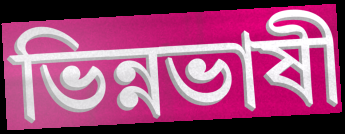
ভিন্নভাষী